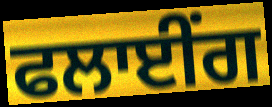
ਫਲਾਈਂਗ